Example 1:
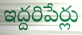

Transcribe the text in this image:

ఇద్దరిపేర్లు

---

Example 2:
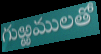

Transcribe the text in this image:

గుఱ్ఱములతో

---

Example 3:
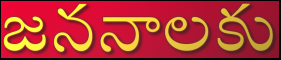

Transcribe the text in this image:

జననాలకు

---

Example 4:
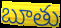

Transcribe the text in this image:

బూతు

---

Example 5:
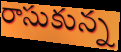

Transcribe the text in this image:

రాసుకున్న